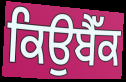
ਕਿਉਬੈੱਕ